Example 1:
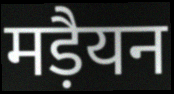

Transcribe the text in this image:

मड़ैयन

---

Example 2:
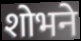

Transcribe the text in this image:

शोभने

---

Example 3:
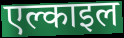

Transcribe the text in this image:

एल्काइल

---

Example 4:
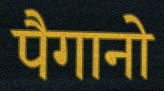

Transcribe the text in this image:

पैगानो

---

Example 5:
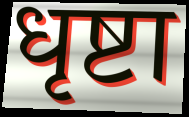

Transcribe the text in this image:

धृष्टा